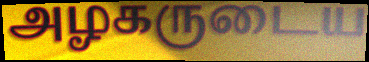
அழகருடைய